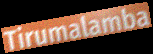
Tirumalamba